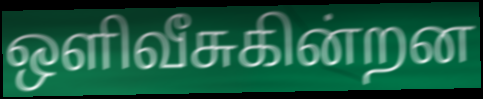
ஒளிவீசுகின்றன